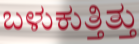
ಬಳುಕುತ್ತಿತ್ತು